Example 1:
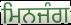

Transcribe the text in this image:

ਮਿਨਜੰਗ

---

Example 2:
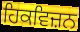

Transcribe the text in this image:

ਹਿਕਵਿਜ਼ਨ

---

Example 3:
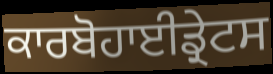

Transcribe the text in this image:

ਕਾਰਬੋਹਾਈਡ੍ਰੇਟਸ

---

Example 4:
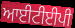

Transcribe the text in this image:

ਆਈਟੀਈਪੀ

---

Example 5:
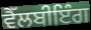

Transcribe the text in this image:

ਵੈੱਲਬੀਇੰਗ